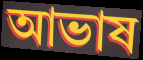
আভাষ